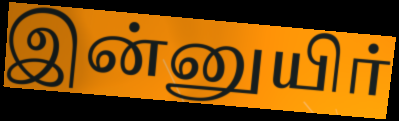
இன்னுயிர்